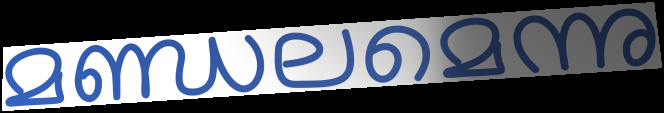
മണ്ഡലമെന്നു